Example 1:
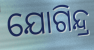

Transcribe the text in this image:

ଯୋଗିନ୍ଦ୍ର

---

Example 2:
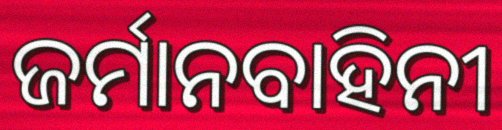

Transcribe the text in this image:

ଜର୍ମାନବାହିନୀ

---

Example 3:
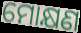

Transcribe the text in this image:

ମୋକ୍ଷଣ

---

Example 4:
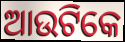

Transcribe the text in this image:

ଆଉଟିକେ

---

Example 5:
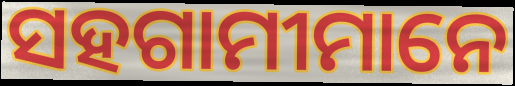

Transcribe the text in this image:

ସହଗାମୀମାନେ